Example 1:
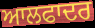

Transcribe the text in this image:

ਆਲਫਾਦਰ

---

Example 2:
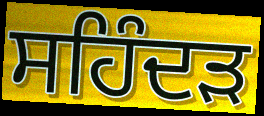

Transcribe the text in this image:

ਸਹਿੰਦੜ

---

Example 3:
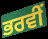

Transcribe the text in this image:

ਭਰਵੀਂ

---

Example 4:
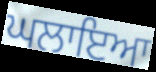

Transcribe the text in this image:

ਘਲਾਇਆ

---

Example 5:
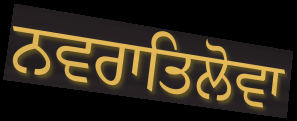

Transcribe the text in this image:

ਨਵਰਾਤਿਲੋਵਾ